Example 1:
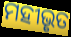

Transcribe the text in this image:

ମହୀଭୃତ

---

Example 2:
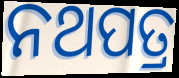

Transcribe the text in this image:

ନଥପତ୍ର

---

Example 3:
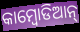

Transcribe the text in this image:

କାମ୍ବୋଡିଆନ୍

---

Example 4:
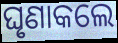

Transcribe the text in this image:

ଘୃଣାକଲେ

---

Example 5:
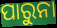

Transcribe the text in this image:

ପାରୁନା